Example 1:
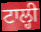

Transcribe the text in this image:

ਟਾਲ੍ਹੀ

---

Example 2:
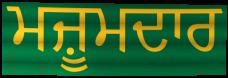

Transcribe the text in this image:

ਮਜ਼ੂਮਦਾਰ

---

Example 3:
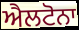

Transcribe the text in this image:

ਐਲਟੋਨਾ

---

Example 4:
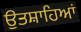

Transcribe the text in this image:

ਉਤਸ਼ਾਹਿਆਂ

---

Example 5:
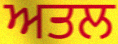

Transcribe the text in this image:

ਅਤਲ